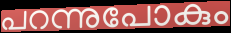
പറന്നുപോകും